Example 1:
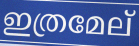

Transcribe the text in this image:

ഇത്രമേല്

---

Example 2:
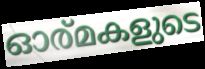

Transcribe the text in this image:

ഓര്മകളുടെ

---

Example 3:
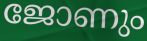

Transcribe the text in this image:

ജോണും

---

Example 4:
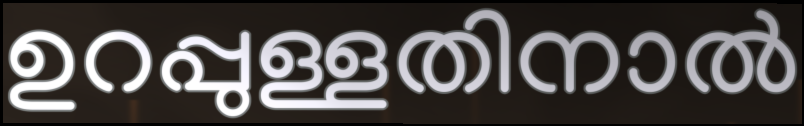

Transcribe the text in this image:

ഉറപ്പുള്ളതിനാൽ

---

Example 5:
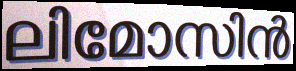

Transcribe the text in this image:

ലിമോസിൻ